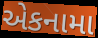
એકનામા